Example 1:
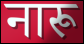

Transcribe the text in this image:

नारू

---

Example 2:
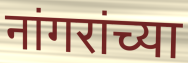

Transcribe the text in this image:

नांगरांच्या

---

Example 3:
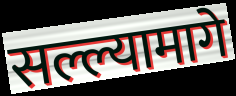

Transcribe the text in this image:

सल्ल्यामागे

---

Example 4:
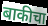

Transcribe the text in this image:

बाकीचा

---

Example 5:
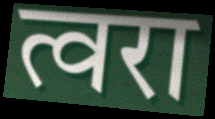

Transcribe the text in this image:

त्वरा